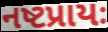
નષ્ટપ્રાયઃ